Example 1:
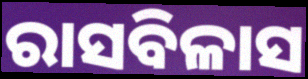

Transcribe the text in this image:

ରାସବିଳାସ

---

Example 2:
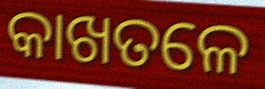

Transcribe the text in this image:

କାଖତଳେ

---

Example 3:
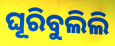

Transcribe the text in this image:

ଘୂରିବୁଲିଲି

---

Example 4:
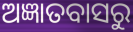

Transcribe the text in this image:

ଅଜ୍ଞାତବାସରୁ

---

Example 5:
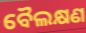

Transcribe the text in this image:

ବୈଲକ୍ଷଣ